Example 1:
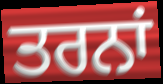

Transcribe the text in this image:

ਤਰਨਾਂ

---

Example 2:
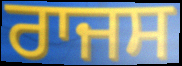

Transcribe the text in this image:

ਰਾਜਸ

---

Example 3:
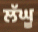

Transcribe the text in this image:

ਲੱਘੂ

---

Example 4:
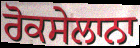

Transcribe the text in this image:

ਰੋਕਸੇਲਾਨਾ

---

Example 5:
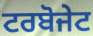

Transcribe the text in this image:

ਟਰਬੋਜੇਟ